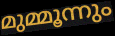
മുമ്മൂന്നും